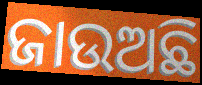
ଜାଉଅଛି